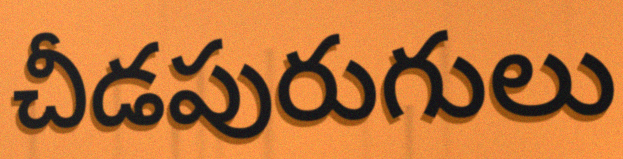
చీడపురుగులు